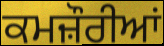
ਕਮਜ਼ੌਰੀਆਂ